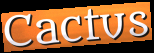
Cactus